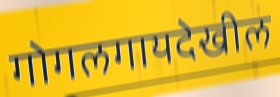
गोगलगायदेखील